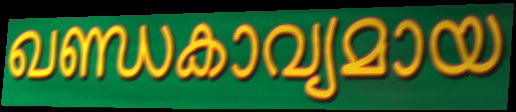
ഖണ്ഡകാവ്യമായ